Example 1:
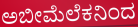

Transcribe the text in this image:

ಅಬೀಮೆಲೆಕನಿಂದ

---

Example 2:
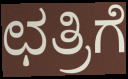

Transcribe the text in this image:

ಛತ್ರಿಗೆ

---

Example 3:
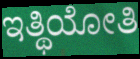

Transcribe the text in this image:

ಇತ್ಥಿಯೋತಿ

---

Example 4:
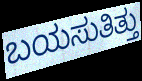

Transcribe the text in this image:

ಬಯಸುತಿತ್ತು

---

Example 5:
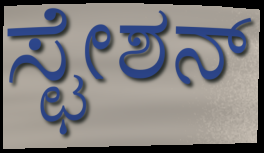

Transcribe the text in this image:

ಸ್ಟೇಶನ್